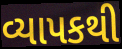
વ્યાપકથી